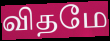
விதமே